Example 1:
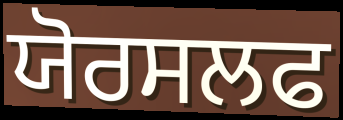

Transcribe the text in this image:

ਯੋਰਸਲਫ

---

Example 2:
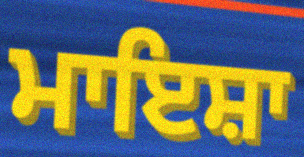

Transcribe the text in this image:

ਮਾਇਸ਼ਾ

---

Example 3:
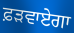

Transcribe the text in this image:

ਫ਼ੜਵਾਏਗਾ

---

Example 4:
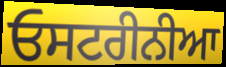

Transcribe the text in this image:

ਓਸਟਰੀਨੀਆ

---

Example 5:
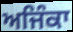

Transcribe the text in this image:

ਅਜਿੰਕਾ